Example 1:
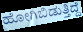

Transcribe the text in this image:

ಹೋಗಿಬಿಡುತ್ತಿದ್ದೆ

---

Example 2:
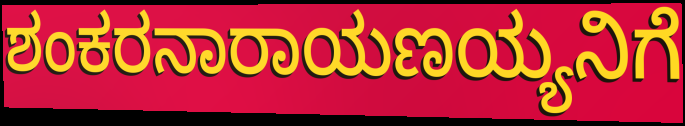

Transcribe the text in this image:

ಶಂಕರನಾರಾಯಣಯ್ಯನಿಗೆ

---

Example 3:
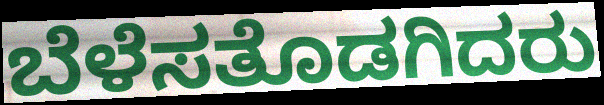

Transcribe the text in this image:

ಬೆಳೆಸತೊಡಗಿದರು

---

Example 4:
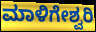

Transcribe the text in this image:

ಮಾಳಿಗೇಶ್ವರಿ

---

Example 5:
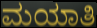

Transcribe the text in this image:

ಮಯಾತಿ